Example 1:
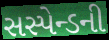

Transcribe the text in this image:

સસ્પેન્ડની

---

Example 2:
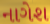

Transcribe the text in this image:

નાગેશ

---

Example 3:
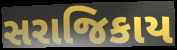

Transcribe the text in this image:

સરાજિકાય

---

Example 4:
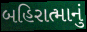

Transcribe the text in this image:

બહિરાત્માનું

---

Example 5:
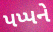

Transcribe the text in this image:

પપ્પને